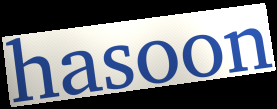
hasoon